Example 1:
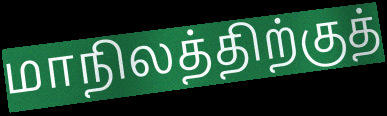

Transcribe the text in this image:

மாநிலத்திற்குத்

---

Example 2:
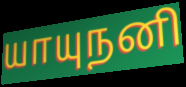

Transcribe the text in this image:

யாயுநனி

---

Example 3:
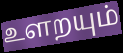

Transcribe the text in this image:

உளறயும்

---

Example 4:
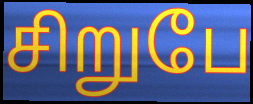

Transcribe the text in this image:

சிறுபே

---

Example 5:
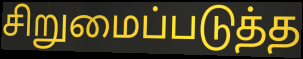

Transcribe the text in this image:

சிறுமைப்படுத்த